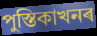
পুস্তিকাখনৰ